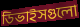
ডিভাইসগুলো